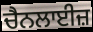
ਚੈਨਲਾਈਜ਼